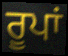
ਰੂਪਾਂ